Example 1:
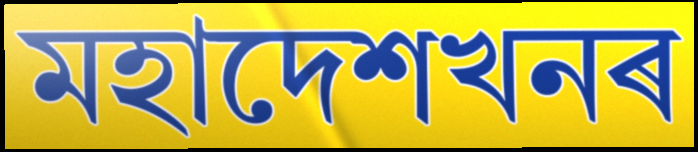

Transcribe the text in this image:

মহাদেশখনৰ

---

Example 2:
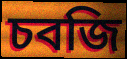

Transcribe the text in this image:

চবজি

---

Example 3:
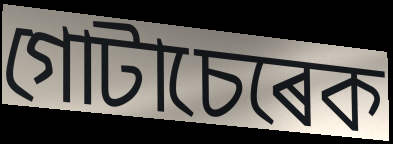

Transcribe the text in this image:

গোটাচেৰেক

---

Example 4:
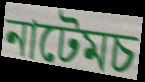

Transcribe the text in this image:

নাটেমচ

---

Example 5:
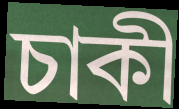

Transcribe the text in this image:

চাকী